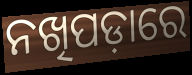
ନଖିପଡ଼ାରେ